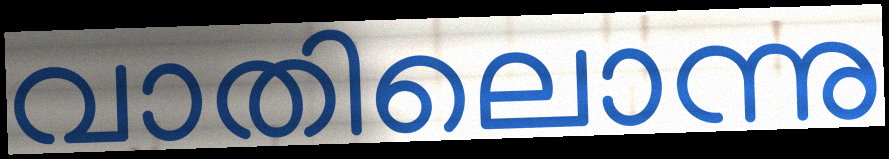
വാതിലൊന്നു